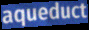
aqueduct